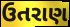
ઉતરાણ